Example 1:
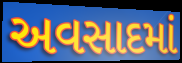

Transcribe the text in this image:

અવસાદમાં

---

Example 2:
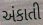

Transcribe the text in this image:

અંકાતી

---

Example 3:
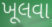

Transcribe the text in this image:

ખૂલવા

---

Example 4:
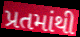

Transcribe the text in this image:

પ્રતમાંથી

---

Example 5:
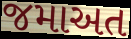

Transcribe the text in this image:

જમાઅત